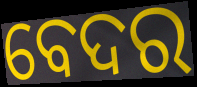
ବେଦର